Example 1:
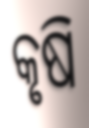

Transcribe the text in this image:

କୃଷି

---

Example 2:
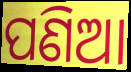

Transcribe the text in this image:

ପଣିଆ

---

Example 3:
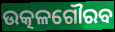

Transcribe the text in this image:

ଉତ୍କଳଗୌରବ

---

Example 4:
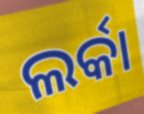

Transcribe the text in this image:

ଲର୍କା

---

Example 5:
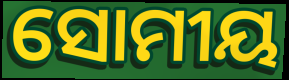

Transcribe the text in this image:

ସୋମୀୟ